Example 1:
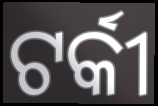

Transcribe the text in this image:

ଟର୍କୀ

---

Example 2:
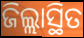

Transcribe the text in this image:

ଜିଲ୍ଲାସ୍ଥିତ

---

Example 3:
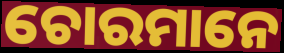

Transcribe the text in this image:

ଚୋରମାନେ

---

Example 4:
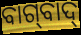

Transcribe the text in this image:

ବାଗ୍‌ବାଦ୍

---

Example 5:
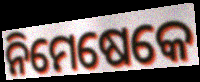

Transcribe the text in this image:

ନିମେଷେକେ